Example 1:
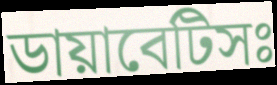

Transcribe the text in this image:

ডায়াবেটিসঃ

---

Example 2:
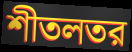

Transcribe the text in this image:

শীতলতর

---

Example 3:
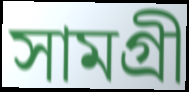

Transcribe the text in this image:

সামগ্রী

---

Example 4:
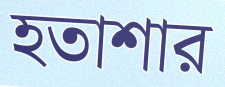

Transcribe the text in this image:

হতাশার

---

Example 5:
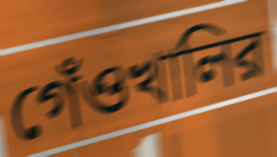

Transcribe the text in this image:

গেঁওখালির